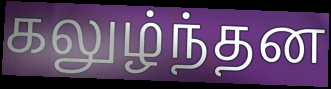
கலுழ்ந்தன